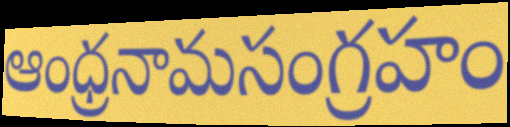
ఆంధ్రనామసంగ్రహం